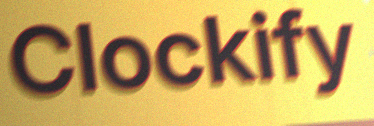
Clockify